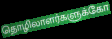
தொழிலாளர்களுக்கோ